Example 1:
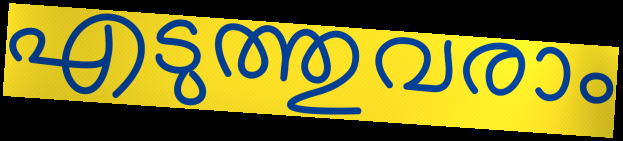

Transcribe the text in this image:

എടുത്തുവരാം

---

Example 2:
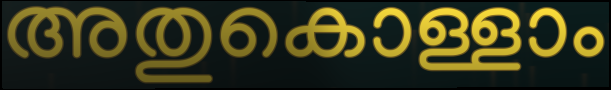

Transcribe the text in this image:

അതുകൊള്ളാം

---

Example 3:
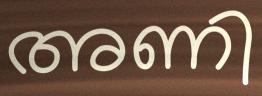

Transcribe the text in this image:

അണി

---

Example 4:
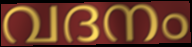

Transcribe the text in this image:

വദനം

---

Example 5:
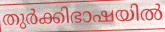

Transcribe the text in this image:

തുർക്കിഭാഷയിൽ